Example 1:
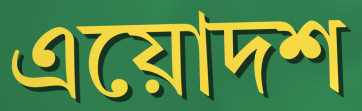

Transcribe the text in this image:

এয়োদশ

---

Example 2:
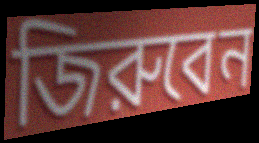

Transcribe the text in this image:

জিরুবেন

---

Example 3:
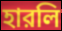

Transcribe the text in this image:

হারলি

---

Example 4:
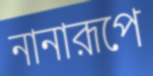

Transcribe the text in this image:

নানারূপে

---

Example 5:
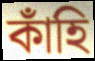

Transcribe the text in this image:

কাঁহি